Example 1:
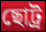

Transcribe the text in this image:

ছোট্র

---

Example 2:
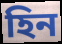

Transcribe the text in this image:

হিন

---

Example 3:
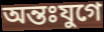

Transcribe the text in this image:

অন্তঃযুগে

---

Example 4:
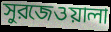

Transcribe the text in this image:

সুরজেওয়ালা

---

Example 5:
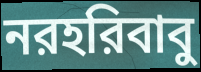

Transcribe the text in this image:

নরহরিবাবু